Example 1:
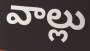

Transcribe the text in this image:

వాల్లు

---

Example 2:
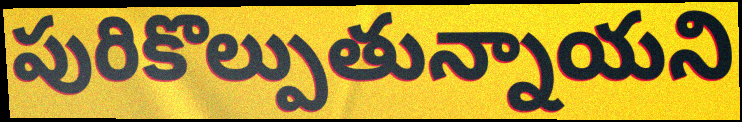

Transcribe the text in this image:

పురికొల్పుతున్నాయని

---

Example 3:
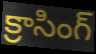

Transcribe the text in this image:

క్రాసింగ్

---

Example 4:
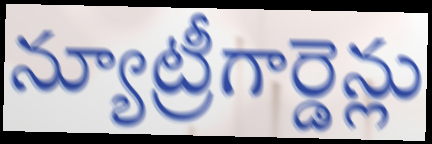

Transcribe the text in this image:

న్యూట్రీగార్డెన్లు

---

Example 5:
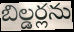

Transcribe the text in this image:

బిల్డర్లను